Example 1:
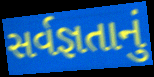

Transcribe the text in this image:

સર્વજ્ઞતાનું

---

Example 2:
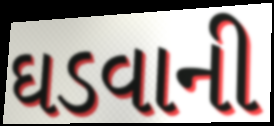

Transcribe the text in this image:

ઘડવાની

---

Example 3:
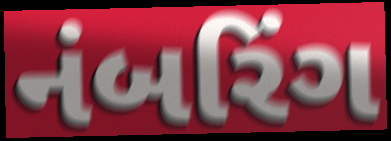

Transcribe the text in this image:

નંબરિંગ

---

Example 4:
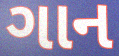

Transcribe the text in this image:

ગાન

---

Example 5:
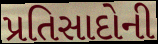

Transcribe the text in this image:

પ્રતિસાદોની